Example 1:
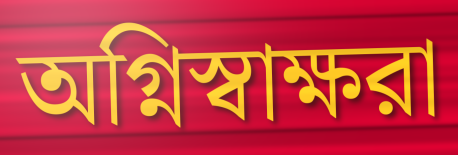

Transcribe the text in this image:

অগ্নিস্বাক্ষরা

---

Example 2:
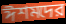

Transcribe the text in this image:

ঈশমদের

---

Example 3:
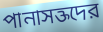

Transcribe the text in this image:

পানাসক্তদের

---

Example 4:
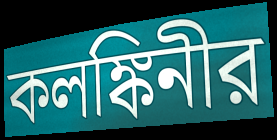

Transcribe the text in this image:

কলঙ্কিনীর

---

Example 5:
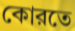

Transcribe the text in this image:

কোরতে